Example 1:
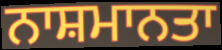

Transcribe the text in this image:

ਨਾਸ਼ਮਾਨਤਾ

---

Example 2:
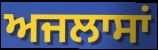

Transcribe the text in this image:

ਅਜਲਾਸਾਂ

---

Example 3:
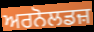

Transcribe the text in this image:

ਅਰਨੋਲਡਜ਼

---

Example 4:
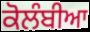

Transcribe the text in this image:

ਕੋਲੰਬੀਆ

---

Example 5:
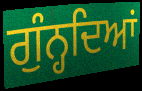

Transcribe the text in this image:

ਗੁੰਨ੍ਹਦਿਆਂ